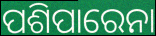
ପଶିପାରେନା